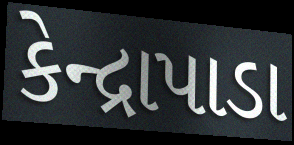
કેન્દ્રાપાડા